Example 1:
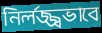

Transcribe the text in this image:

নির্লজ্জ্বভাবে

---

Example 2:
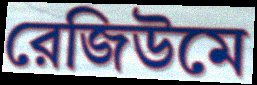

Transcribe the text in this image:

রেজিউমে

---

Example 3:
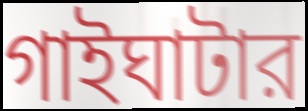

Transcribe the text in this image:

গাইঘাটার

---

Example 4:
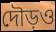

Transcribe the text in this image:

দৌড়ও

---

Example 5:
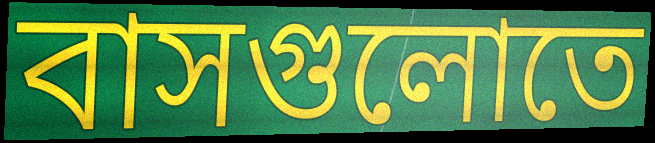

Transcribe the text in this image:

বাসগুলোতে